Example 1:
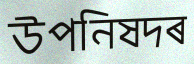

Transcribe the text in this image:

উপনিষদৰ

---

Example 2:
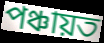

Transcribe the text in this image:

পঞ্চায়ত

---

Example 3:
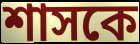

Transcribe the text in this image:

শাসকে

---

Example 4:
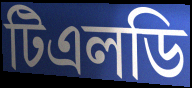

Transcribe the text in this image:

টিএলডি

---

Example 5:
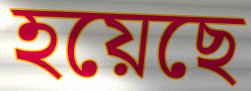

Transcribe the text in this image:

হয়েছে